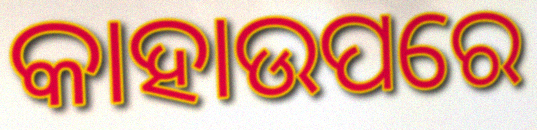
କାହାଉପରେ